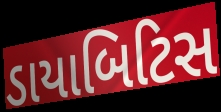
ડાયાબિટિસ